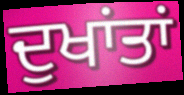
ਦੁਖਾਂਤਾਂ